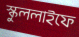
স্কুললাইফে